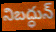
నిబద్ధున్